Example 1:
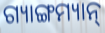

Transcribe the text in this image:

ଗ୍ୟାଙ୍ଗମ୍ୟାନ୍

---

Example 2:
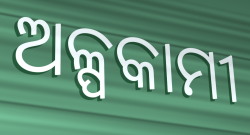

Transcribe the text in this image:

ଅଳ୍ପକାମୀ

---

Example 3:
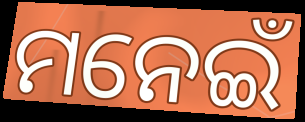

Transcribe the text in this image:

ମନେଇଁ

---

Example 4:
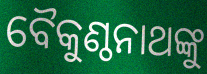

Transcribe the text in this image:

ବୈକୁଣ୍ଠନାଥଙ୍କୁ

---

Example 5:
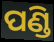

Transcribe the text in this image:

ପଣ୍ଡି